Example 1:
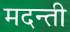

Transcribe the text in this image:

मदन्ती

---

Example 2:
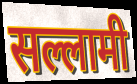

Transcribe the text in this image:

सल्लामी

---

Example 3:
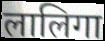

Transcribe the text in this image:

लालिगा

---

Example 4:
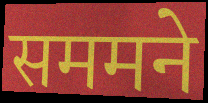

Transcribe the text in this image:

सममने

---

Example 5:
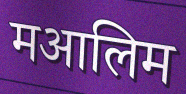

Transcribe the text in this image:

मआलिम